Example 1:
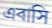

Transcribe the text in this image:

এবাসি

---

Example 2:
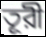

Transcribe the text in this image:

তূরী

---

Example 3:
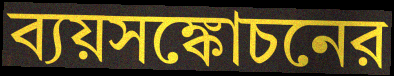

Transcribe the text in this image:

ব্যয়সঙ্কোচনের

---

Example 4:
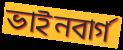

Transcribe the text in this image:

ভাইনবার্গ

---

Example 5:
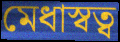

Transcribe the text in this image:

মেধাস্বত্ব